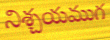
నిశ్చయముగ